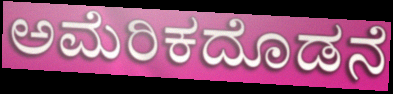
ಅಮೆರಿಕದೊಡನೆ